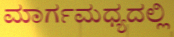
ಮಾರ್ಗಮಧ್ಯದಲ್ಲಿ